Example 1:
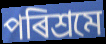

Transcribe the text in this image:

পৰিশ্ৰমে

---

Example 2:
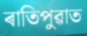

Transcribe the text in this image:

ৰাতিপুৱাত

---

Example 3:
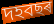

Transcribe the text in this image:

দহবছৰ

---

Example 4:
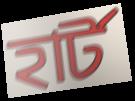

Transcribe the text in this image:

হাৰ্ট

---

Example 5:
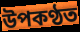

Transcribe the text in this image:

উপকণ্ঠত